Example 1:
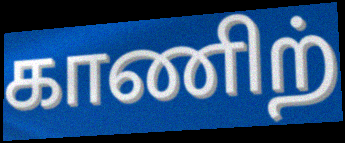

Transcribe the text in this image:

காணிற்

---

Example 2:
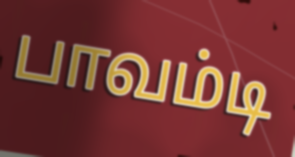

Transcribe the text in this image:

பாவம்டி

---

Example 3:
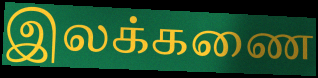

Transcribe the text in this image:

இலக்கணை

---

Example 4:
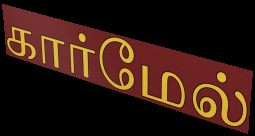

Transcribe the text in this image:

கார்மேல்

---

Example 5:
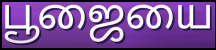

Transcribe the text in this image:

பூஜையை